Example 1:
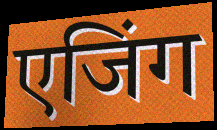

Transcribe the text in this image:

एजिंग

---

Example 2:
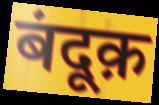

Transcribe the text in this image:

बंदूक़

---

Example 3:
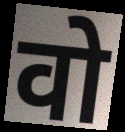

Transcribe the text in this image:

वो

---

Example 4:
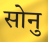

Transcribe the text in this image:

सोनु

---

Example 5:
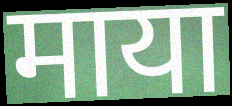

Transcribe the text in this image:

माया